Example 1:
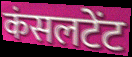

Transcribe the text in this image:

कंसलटेंट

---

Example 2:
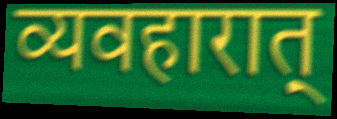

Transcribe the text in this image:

व्यवहारात्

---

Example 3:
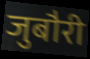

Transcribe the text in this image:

जुबौरी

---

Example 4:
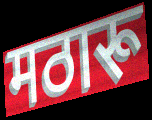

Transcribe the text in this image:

मठारू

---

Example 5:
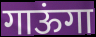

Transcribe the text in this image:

गाऊंगा